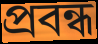
প্রবন্ধ